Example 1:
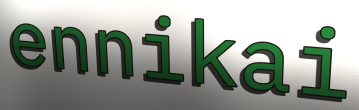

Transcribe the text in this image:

ennikai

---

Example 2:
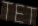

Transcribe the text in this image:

TET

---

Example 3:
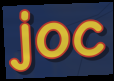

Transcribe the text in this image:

joc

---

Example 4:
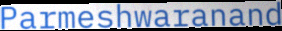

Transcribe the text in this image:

Parmeshwaranand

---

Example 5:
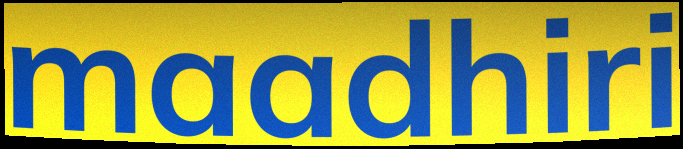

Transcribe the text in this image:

maadhiri